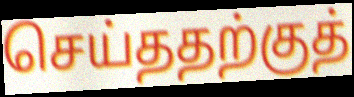
செய்ததற்குத்